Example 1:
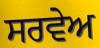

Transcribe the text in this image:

ਸਰਵੇਅ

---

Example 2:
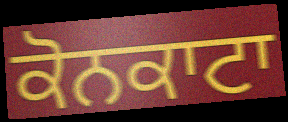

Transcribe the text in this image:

ਕੋਨਕਾਟਾ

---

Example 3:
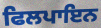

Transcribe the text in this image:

ਫਿਲਪਾਇਨ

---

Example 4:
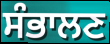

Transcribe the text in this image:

ਸੰਭਾਲਣ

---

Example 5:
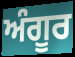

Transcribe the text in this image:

ਅੰਗੂਰ